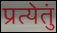
प्रत्येतुं